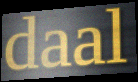
daal